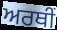
ਅਰਥੀਂ